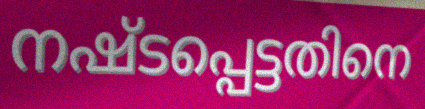
നഷ്ടപ്പെട്ടതിനെ